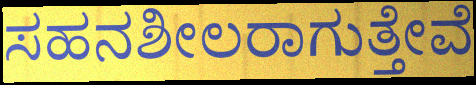
ಸಹನಶೀಲರಾಗುತ್ತೇವೆ